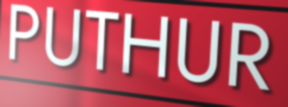
PUTHUR